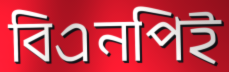
বিএনপিই